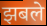
झबले